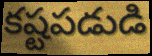
కష్టపడుడి